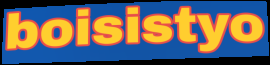
boisistyo